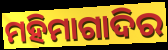
ମହିମାଗାଦିର